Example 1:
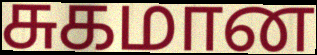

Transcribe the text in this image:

சுகமான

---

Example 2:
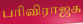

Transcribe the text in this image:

பரிவிராஜக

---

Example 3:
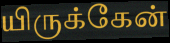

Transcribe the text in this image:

யிருக்கேன்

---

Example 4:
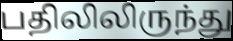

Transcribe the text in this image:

பதிலிலிருந்து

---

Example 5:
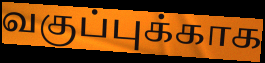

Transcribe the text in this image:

வகுப்புக்காக